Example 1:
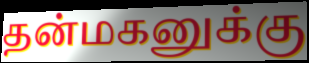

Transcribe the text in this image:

தன்மகனுக்கு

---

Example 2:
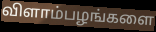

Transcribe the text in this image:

விளாம்பழங்களை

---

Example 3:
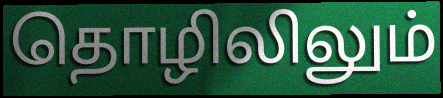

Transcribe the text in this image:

தொழிலிலும்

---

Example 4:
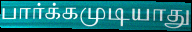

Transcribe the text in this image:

பார்க்கமுடியாது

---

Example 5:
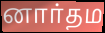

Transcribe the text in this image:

னார்தம